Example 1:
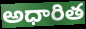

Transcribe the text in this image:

అధారిత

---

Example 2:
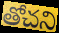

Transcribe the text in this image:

తోచని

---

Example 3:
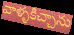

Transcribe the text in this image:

వాళ్ళకిచ్చాను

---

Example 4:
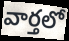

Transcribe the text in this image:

వార్తలో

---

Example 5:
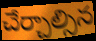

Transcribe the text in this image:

చేర్చాల్సిన